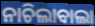
ନାଚିଲାବାଲା